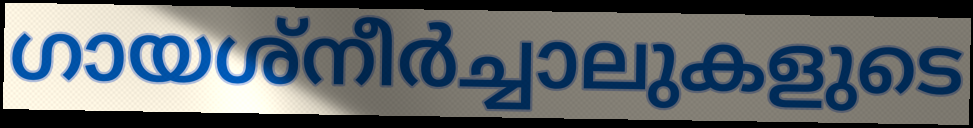
ഗായശ്നീർച്ചാലുകളുടെ